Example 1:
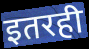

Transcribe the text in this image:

इतरही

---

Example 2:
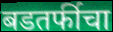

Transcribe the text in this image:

बडतर्फीचा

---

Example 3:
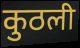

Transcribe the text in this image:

कुठली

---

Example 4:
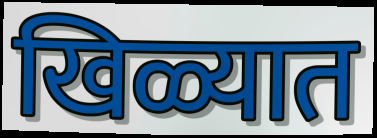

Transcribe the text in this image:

खिळ्यात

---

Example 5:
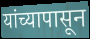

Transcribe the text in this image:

यांच्यापासून